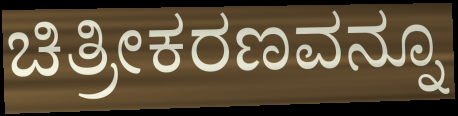
ಚಿತ್ರೀಕರಣವನ್ನೂ